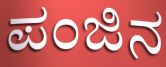
ಪಂಜಿನ